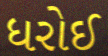
ધરોઈ